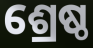
ଶ୍ରେଷ୍ଠ